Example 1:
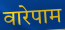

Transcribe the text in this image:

वारेपाम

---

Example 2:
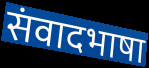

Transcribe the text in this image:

संवादभाषा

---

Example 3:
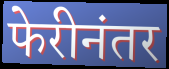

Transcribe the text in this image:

फेरीनंतर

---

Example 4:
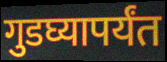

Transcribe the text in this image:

गुडघ्यापर्यंत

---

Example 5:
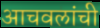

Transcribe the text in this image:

आचवलांची